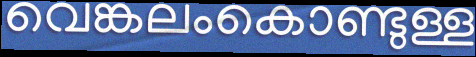
വെങ്കലംകൊണ്ടുള്ള